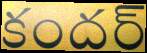
కందర్